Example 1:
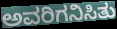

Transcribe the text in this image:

ಅವರಿಗನಿಸಿತು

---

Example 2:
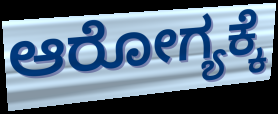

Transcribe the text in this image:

ಆರೋಗ್ಯಕ್ಕೆ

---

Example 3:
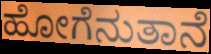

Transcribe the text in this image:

ಹೋಗೆನುತಾನೆ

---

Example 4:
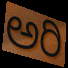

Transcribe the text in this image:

ಅರಿ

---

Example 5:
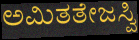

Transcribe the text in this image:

ಅಮಿತತೇಜಸ್ವಿ